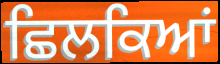
ਛਿਲਕਿਆਂ